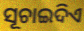
ସୂଚାଇଦିଏ